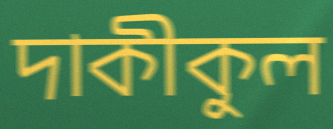
দাকীকুল